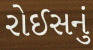
રોઈસનું